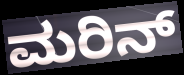
ಮರಿನ್